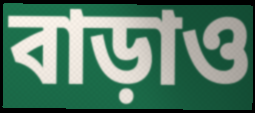
বাড়াও